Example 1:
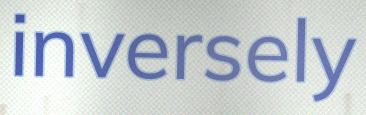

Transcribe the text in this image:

inversely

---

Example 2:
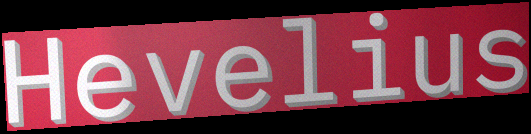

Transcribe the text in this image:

Hevelius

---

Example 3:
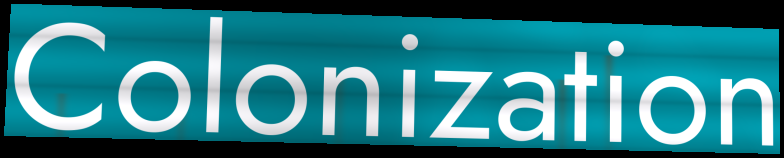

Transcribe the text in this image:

Colonization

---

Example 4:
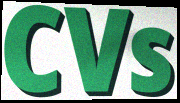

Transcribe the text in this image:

CVs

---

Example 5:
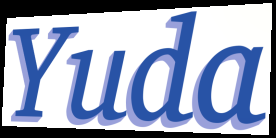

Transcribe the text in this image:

Yuda